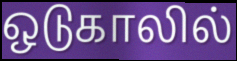
ஒடுகாலில்